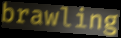
brawling